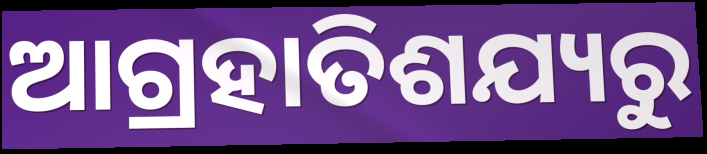
ଆଗ୍ରହାତିଶଯ୍ୟରୁ